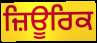
ਜ਼ਿਊਰਿਕ